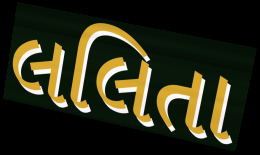
લલિતા